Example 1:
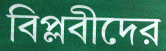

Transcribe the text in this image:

বিপ্লবীদের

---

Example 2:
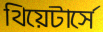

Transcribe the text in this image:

থিয়েটার্সে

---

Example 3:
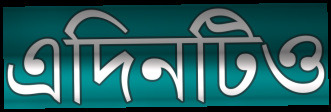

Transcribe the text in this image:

এদিনটিও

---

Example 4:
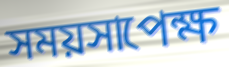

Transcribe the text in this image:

সময়সাপেক্ষ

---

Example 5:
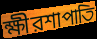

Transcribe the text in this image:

ক্ষীরশাপাতি